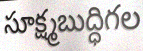
సూక్ష్మబుద్ధిగల